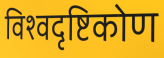
विश्वदृष्टिकोण